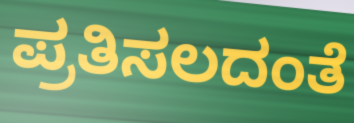
ಪ್ರತಿಸಲದಂತೆ